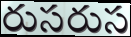
రుసరుస